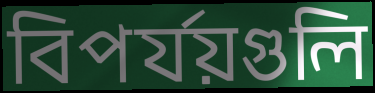
বিপর্যয়গুলি